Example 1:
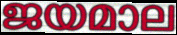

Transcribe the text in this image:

ജയമാല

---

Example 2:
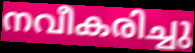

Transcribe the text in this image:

നവീകരിച്ചു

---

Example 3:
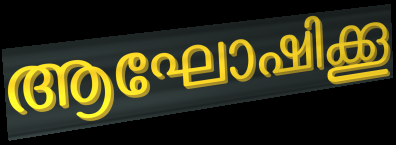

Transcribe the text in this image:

ആഘോഷിക്കൂ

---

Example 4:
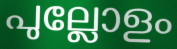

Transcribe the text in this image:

പുല്ലോളം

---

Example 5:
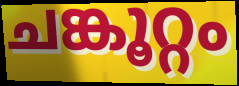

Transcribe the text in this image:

ചങ്കൂറ്റം